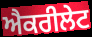
ਐਕਰੀਲੇਟ